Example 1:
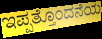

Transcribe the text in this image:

ಇಪ್ಪತ್ತೊಂದನೆಯ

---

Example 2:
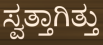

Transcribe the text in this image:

ಸ್ವತ್ತಾಗಿತ್ತು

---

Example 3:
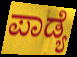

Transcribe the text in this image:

ಪಾಡ್ಯೆ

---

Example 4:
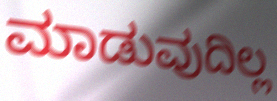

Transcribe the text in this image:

ಮಾಡುವುದಿಲ್ಲ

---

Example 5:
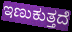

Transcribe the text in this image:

ಇಣುಕುತ್ತದೆ